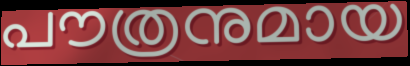
പൗത്രനുമായ